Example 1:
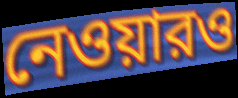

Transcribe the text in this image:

নেওয়ারও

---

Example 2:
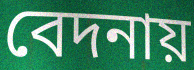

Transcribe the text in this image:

বেদনায়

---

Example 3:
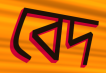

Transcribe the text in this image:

বেদ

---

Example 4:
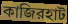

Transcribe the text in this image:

কাজিরহাট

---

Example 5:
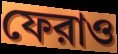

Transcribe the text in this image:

ফেরাও